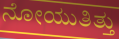
ನೋಯುತಿತ್ತು